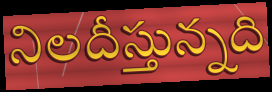
నిలదీస్తున్నది